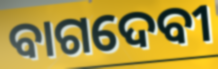
ବାଗଦେବୀ